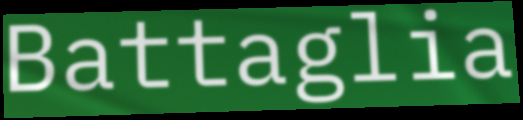
Battaglia